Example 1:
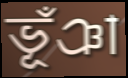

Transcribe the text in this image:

ভূঁঞা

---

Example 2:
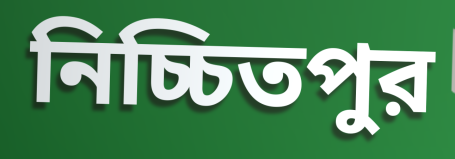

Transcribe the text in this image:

নিচ্চিতপুর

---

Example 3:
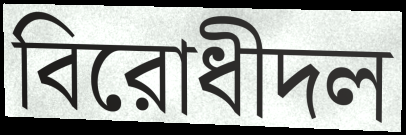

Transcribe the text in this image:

বিরোধীদল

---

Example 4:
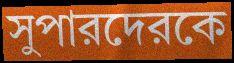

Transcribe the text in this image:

সুপারদেরকে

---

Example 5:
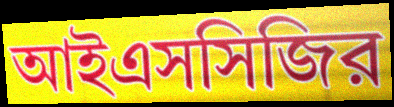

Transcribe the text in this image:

আইএসসিজির